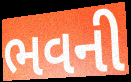
ભવની